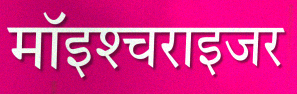
मॉइश्‍चराइजर